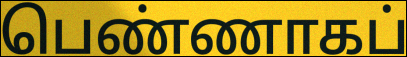
பெண்ணாகப்